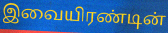
இவையிரண்டின்